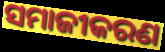
ସମାଜୀକରଣ